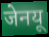
जेनयू